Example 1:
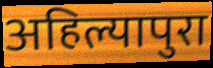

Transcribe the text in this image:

अहिल्यापुरा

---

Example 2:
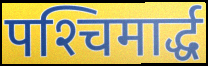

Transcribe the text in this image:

पश्चिमार्द्ध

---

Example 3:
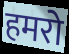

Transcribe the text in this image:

हमरो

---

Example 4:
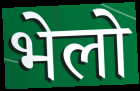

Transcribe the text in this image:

भेलो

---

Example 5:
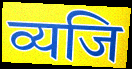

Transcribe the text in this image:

व्यजि